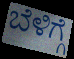
ಬೆಳಿಗ್ಗೆ